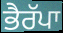
ਭੈਰੱਪਾ